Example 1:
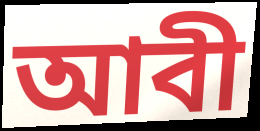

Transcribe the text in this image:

আবী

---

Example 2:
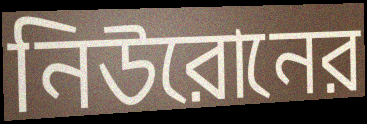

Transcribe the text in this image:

নিউরোনের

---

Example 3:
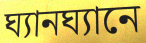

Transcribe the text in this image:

ঘ্যানঘ্যানে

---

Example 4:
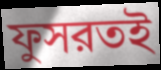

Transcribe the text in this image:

ফুসরতই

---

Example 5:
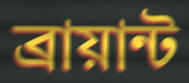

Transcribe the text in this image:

ব্রায়ান্ট